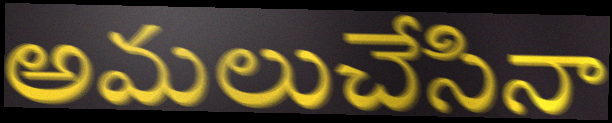
అమలుచేసినా